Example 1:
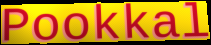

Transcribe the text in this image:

Pookkal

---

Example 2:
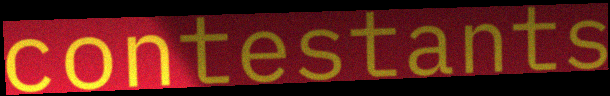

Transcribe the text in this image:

contestants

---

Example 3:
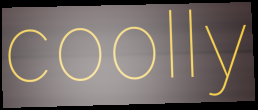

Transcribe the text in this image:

coolly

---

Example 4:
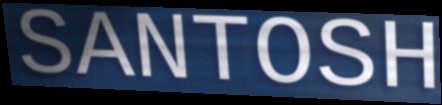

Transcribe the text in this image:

SANTOSH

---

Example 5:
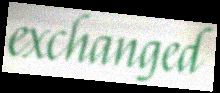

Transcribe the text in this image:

exchanged